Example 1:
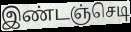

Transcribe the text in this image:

இண்டஞ்செடி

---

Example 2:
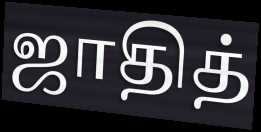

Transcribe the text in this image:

ஜாதித்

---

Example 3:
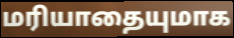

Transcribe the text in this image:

மரியாதையுமாக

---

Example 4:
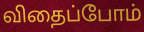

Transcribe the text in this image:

விதைப்போம்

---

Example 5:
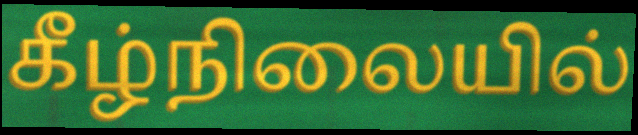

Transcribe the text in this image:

கீழ்நிலையில்